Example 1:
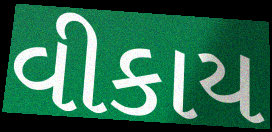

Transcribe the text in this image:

વીકાય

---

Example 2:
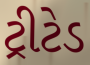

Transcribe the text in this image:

ટ્રીટેડ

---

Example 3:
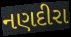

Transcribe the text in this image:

નણદીરા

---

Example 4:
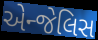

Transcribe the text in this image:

એન્જેલિસ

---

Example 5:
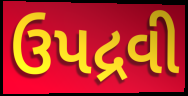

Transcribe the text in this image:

ઉપદ્રવી